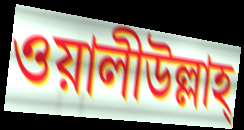
ওয়ালীউল্লাহ্